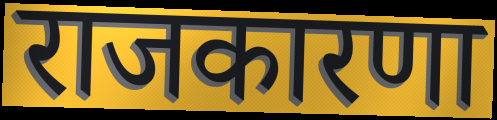
राजकारणा